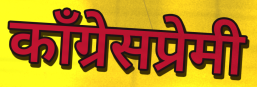
काँग्रेसप्रेमी